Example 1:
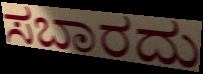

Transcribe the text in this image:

ಸಬಾರದು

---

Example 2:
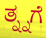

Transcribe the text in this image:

ತ್ನ್ನಗೆ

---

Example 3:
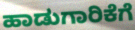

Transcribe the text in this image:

ಹಾಡುಗಾರಿಕೆಗೆ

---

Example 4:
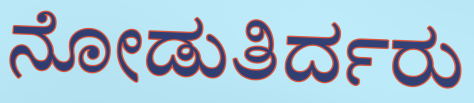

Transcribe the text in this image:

ನೋಡುತಿರ್ದರು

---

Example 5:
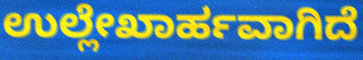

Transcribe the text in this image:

ಉಲ್ಲೇಖಾರ್ಹವಾಗಿದೆ